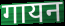
गायन